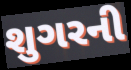
શુગરની